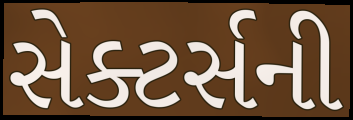
સેક્ટર્સની